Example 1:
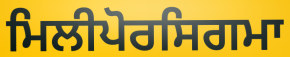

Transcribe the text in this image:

ਮਿਲੀਪੋਰਸਿਗਮਾ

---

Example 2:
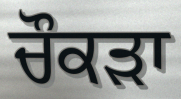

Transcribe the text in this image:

ਚੌਕੜਾ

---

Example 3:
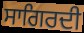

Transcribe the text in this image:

ਸਾਗਿਰਦੀ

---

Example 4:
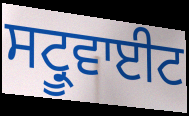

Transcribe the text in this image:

ਸਟ੍ਰੂਵਾਈਟ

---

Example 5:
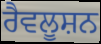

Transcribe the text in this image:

ਰੈਵਲੂਸ਼ਨ